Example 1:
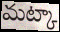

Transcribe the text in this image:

మట్కా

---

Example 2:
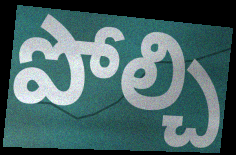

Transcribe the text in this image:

పోల్చి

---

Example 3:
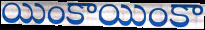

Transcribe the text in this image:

యింకాయింకా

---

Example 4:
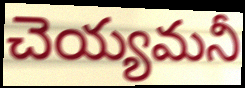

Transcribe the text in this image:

చెయ్యమనీ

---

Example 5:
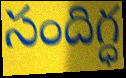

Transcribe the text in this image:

సందిగ్ధ